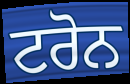
ਟਰੋਨ